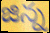
జిన్న